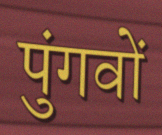
पुंगवों